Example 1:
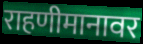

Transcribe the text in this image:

राहणीमानावर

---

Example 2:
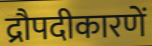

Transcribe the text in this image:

द्रौपदीकारणें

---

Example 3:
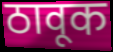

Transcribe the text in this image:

ठावूक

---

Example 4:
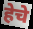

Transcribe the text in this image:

हेचे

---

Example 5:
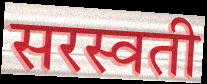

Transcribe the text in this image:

सरस्वती